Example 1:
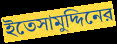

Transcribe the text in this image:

ইতেসামুদ্দিনের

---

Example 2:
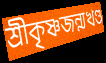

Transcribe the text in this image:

শ্রীকৃষ্ণজন্মখণ্ড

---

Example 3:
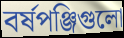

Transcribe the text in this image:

বর্ষপঞ্জিগুলো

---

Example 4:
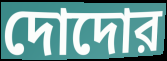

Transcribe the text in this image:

দোদোর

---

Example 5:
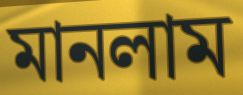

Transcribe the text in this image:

মানলাম